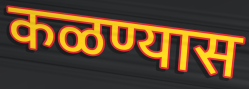
कळण्यास